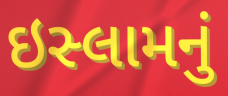
ઇસ્લામનું